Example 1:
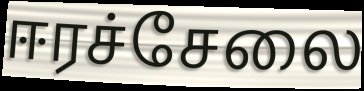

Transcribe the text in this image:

ஈரச்சேலை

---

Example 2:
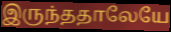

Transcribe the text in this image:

இருந்ததாலேயே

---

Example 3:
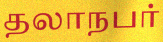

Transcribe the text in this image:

தலாநபர்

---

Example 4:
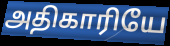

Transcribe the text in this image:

அதிகாரியே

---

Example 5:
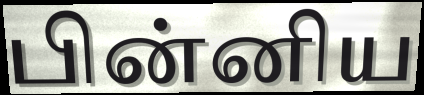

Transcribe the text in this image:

பின்னிய